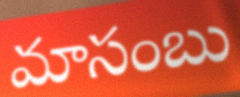
మాసంబు